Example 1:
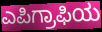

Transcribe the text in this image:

ಎಪಿಗ್ರಾಫಿಯ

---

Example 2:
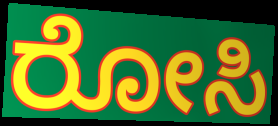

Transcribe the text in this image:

ರೋಸಿ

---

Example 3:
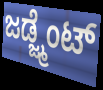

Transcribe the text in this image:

ಜಡ್ಜ್ಮೆಂಟ್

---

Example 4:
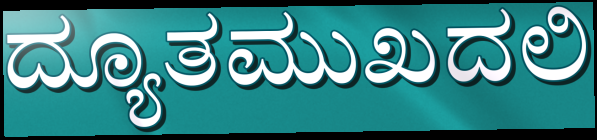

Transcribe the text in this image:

ದ್ಯೂತಮುಖದಲಿ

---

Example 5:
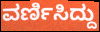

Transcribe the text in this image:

ವರ್ಣಿಸಿದ್ದು